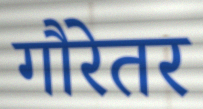
गौरेतर